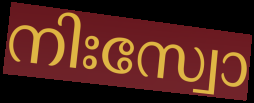
നിഃസ്വോ